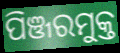
ପିଞ୍ଜରମୁକ୍ତ